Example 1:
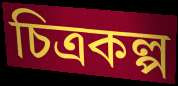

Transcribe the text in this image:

চিত্ৰকল্প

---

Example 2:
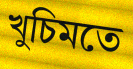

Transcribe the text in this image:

খুচিমতে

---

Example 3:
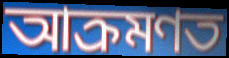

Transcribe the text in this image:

আক্ৰমণত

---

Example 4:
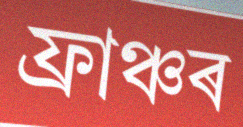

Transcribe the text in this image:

ফ্ৰাঞ্চৰ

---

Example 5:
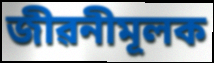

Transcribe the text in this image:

জীৱনীমূলক